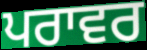
ਪਰਾਵਰ